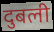
दुबली